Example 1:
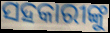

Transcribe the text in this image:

ସହକାରୀଙ୍କୁ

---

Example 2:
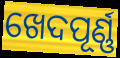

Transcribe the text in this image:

ଖେଦପୂର୍ଣ୍ଣ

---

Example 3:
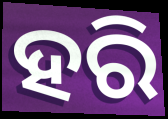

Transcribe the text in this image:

ହରି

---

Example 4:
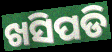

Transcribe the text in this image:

ଖସିପଡି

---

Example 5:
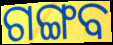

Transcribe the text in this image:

ଗଙ୍ଗବ